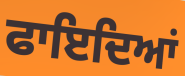
ਫਾਇਦਿਆਂ